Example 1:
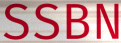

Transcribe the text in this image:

SSBN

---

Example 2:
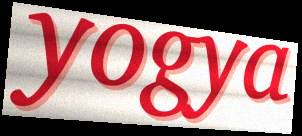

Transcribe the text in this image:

yogya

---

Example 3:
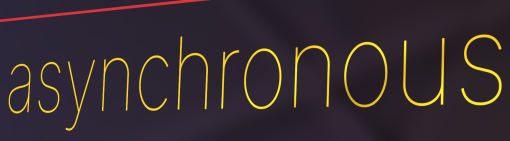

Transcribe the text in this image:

asynchronous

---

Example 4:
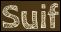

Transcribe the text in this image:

Suif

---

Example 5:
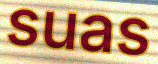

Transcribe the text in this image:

suas